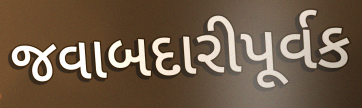
જવાબદારીપૂર્વક